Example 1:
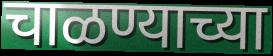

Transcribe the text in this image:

चाळण्याच्या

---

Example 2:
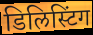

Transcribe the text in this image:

डिलिस्टिंग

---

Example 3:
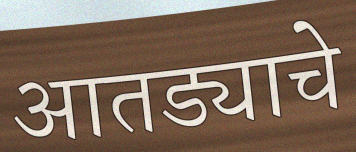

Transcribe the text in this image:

आतड्याचे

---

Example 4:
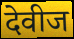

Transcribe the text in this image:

देवीज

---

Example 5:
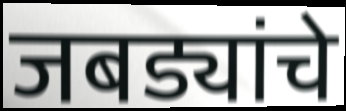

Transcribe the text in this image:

जबड्यांचे